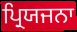
ਪ੍ਰਿਯਜਨਾ